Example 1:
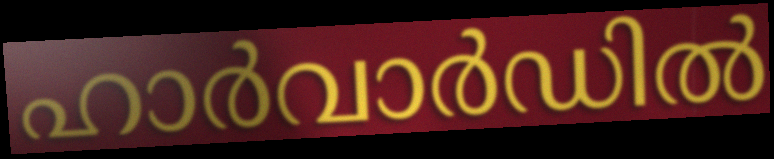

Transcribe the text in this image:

ഹാർവാർഡിൽ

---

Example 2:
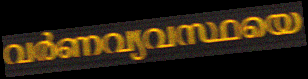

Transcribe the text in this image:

വർണവ്യവസ്ഥയെ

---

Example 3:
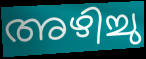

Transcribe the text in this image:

അഴിച്ചു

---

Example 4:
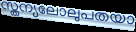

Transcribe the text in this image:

സ്തന്യലോലുപതയാ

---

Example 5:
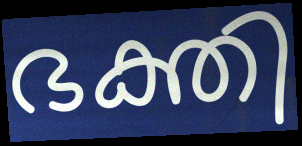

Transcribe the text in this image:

ഭക്തി